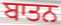
ਬਾਤਨ